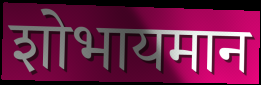
शोभायमान